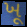
ખૂ